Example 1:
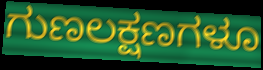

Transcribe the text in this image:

ಗುಣಲಕ್ಷಣಗಳೂ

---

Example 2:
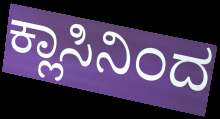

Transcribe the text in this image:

ಕ್ಲಾಸಿನಿಂದ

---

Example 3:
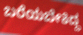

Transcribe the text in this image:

ಬರೆಯಬೇಕಿದ್ದ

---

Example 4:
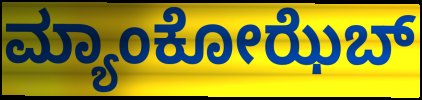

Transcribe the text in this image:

ಮ್ಯಾಂಕೋಝೆಬ್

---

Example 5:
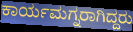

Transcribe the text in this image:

ಕಾರ್ಯಮಗ್ನರಾಗಿದ್ದರು